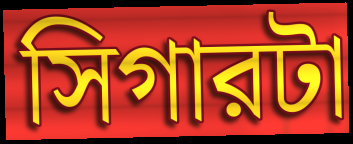
সিগারটা